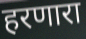
हरणारा